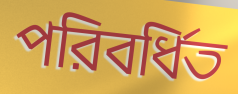
পরিবর্ধিত